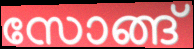
സോങ്ങ്